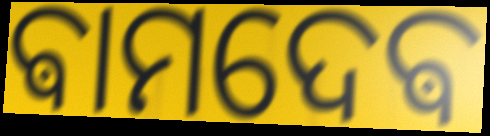
ଵାମଦେଵ